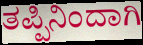
ತಪ್ಪಿನಿಂದಾಗಿ